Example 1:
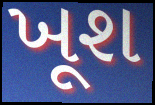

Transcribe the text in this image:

ખૂશ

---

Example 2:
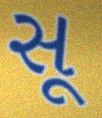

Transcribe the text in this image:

સૂ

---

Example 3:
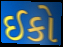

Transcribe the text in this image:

ઈકો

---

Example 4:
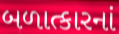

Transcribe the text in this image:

બળાત્કારનાં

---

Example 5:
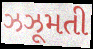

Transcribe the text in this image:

ઝઝૂમતી